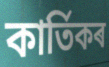
কাৰ্তিকৰ